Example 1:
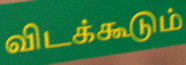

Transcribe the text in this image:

விடக்கூடும்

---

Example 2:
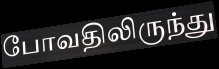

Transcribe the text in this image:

போவதிலிருந்து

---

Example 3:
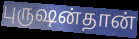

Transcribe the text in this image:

புருஷன்தான்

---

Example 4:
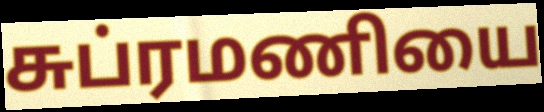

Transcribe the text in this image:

சுப்ரமணியை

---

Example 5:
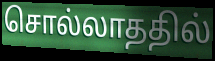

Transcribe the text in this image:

சொல்லாததில்